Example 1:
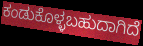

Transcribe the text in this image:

ಕಂಡುಕೊಳ್ಳಬಹುದಾಗಿದೆ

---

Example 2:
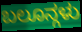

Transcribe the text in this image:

ಬಲೂನ್ಗಳು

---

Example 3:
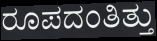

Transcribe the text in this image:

ರೂಪದಂತಿತ್ತು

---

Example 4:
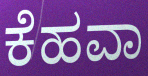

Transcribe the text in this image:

ಕೆಹವಾ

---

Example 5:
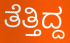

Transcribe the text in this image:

ತೆತ್ತಿದ್ದ